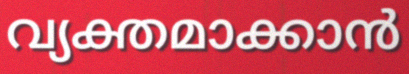
വ്യക്തമാക്കാൻ